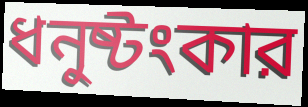
ধনুষ্টংকার